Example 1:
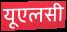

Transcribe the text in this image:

यूएलसी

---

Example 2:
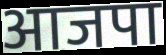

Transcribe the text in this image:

आजपा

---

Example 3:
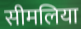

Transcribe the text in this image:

सीमलिया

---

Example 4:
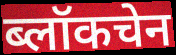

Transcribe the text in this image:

ब्लॉकचेन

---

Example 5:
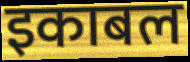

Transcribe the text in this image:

इकाबल